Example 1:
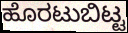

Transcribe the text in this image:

ಹೊರಟುಬಿಟ್ಟ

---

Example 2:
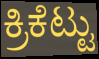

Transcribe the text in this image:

ಕ್ರಿಕೆಟ್ಟು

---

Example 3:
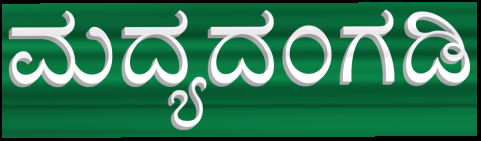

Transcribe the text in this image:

ಮದ್ಯದಂಗಡಿ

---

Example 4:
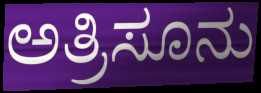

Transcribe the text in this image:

ಅತ್ರಿಸೂನು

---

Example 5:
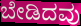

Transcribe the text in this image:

ಬೇಡಿದವು